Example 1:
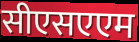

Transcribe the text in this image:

सीएसएएम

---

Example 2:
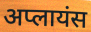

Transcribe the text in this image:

अप्लायंस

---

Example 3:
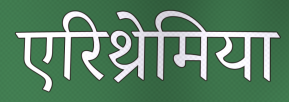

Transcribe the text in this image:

एरिथ्रेमिया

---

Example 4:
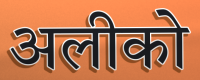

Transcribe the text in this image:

अलीको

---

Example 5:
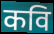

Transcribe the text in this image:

कवि